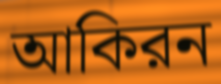
আকিরন